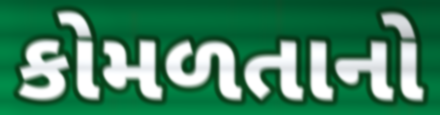
કોમળતાનો